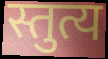
स्तुत्य